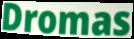
Dromas